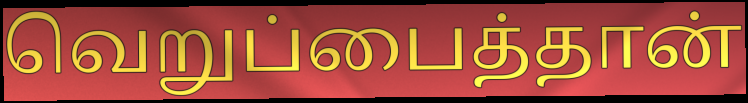
வெறுப்பைத்தான்